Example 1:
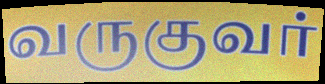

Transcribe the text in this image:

வருகுவர்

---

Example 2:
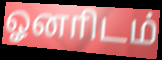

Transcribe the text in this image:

ஓனரிடம்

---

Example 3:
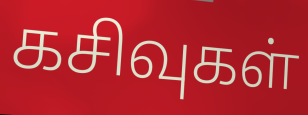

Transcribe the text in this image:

கசிவுகள்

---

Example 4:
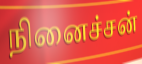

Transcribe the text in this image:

நினைச்சன்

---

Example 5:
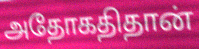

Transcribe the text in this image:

அதோகதிதான்